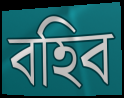
বহিব